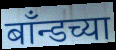
बाँन्डच्या